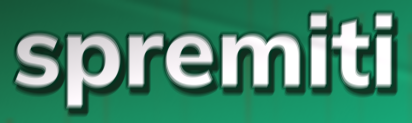
spremiti